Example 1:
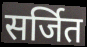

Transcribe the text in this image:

सर्जित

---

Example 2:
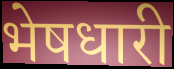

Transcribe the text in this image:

भेषधारी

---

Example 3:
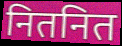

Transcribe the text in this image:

नितनित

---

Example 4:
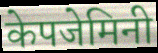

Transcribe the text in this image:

केपजेमिनी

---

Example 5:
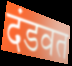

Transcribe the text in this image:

दंडवत